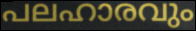
പലഹാരവും